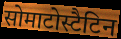
सोमाटोस्टैटिन